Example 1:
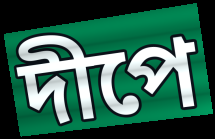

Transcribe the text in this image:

দীপে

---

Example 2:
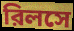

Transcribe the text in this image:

রিলসে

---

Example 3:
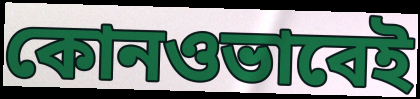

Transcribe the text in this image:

কোনওভাবেই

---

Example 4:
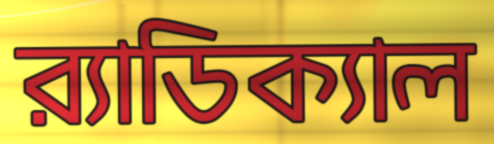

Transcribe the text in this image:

র‍্যাডিক্যাল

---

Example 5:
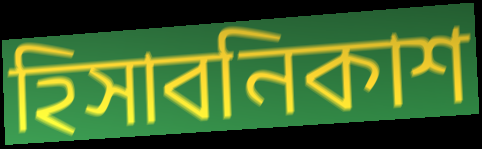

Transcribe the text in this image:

হিসাবনিকাশ